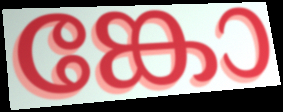
ങ്കോ